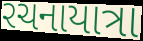
રચનાયાત્રા